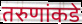
तरुणांकडे